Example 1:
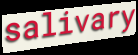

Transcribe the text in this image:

salivary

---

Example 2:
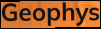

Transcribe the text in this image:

Geophys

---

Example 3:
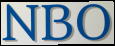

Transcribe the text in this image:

NBO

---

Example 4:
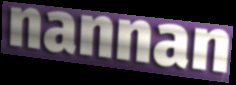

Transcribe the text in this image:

nannan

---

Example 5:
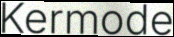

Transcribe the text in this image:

Kermode